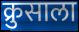
क्रुसाला